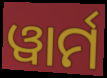
ୱାର୍ମ